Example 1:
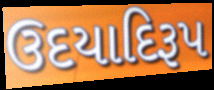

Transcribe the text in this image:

ઉદયાદિરૂપ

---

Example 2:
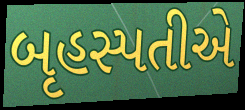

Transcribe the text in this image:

બૃહસ્પતીએ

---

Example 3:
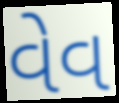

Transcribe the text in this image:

વેવ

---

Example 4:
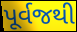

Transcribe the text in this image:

પૂર્વજથી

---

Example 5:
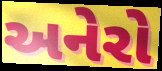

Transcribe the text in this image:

અનેરો